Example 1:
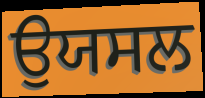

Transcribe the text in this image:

ਉਯਸਲ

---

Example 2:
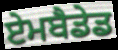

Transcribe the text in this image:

ਏਮਬੈਡੇਡ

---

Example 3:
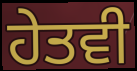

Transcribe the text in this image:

ਹੇਤਵੀ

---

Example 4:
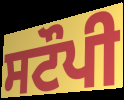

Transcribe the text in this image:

ਸਟੌਪੀ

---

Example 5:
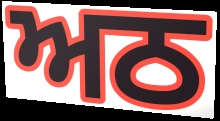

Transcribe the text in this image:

ਅਠ